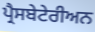
ਪ੍ਰੈਸਬੇਟੇਰੀਅਨ